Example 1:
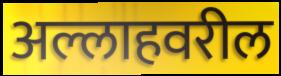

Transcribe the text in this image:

अल्लाहवरील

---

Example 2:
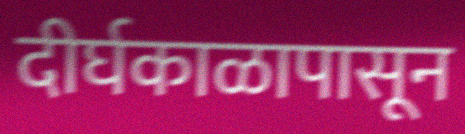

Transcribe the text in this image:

दीर्घकाळापासून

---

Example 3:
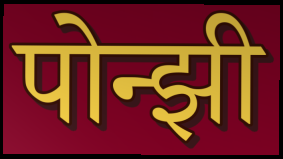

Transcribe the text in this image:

पोन्झी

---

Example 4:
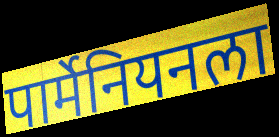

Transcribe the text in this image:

पार्मेनियनला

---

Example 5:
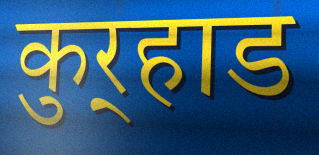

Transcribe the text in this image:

कुर्हाड